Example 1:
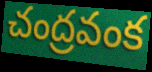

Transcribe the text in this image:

చంద్రవంక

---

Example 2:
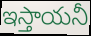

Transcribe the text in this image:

ఇస్తాయనీ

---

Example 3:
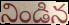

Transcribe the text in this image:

నిండిన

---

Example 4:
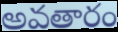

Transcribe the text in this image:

అవతారం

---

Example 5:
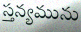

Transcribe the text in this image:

స్తన్యమును